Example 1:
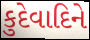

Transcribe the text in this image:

કુદેવાદિને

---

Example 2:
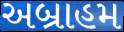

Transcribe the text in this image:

અબ્રાહમ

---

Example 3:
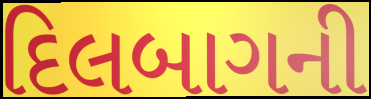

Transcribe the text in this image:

દિલબાગની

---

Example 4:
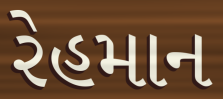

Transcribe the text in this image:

રેહમાન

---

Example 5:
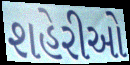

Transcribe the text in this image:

શહેરીઓ